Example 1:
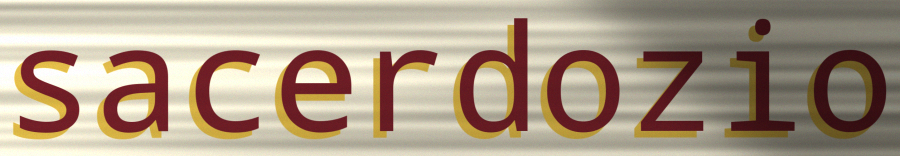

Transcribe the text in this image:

sacerdozio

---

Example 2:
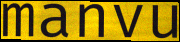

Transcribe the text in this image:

manvu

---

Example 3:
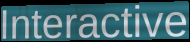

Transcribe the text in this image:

Interactive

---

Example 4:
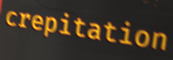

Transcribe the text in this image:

crepitation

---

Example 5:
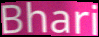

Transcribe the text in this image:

Bhari